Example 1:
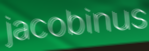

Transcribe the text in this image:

jacobinus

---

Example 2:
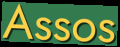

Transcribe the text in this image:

Assos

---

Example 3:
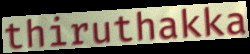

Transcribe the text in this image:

thiruthakka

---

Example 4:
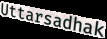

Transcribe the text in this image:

Uttarsadhak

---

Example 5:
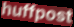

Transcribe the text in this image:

huffpost